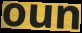
oun